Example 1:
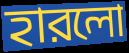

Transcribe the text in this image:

হারলো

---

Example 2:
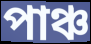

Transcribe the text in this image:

পাঞ্চ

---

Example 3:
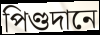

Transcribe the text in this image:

পিণ্ডদানে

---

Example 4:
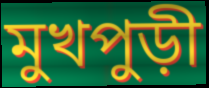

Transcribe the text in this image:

মুখপুড়ী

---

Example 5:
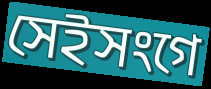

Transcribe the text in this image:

সেইসংগে